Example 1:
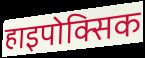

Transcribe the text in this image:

हाइपोक्सिक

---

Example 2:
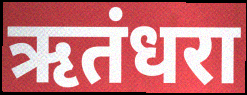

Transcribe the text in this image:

ऋतंधरा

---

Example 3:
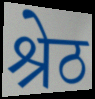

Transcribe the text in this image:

श्रेठ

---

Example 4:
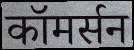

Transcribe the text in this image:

कॉमर्सन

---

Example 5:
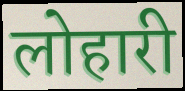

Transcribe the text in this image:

लोहारी